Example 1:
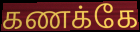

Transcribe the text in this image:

கணக்கே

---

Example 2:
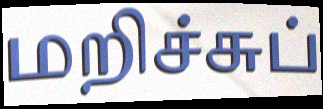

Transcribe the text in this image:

மறிச்சுப்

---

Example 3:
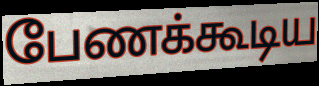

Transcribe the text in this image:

பேணக்கூடிய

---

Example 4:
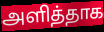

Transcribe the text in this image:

அளித்தாக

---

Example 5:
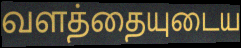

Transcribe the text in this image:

வளத்தையுடைய